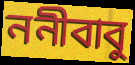
ননীবাবু